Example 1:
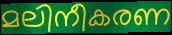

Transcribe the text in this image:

മലിനീകരണ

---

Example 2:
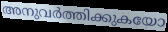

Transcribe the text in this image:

അനുവർത്തിക്കുകയോ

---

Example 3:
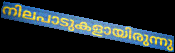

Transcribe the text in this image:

നിലപാടുകളായിരുന്നു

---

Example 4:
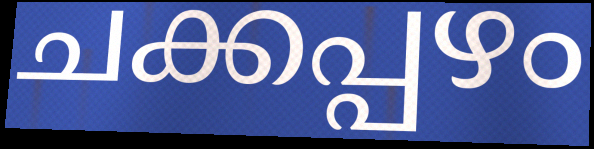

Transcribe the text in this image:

ചക്കപ്പഴം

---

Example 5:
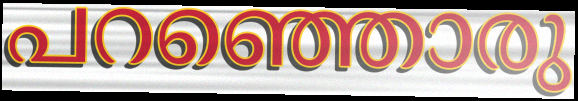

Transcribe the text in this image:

പറഞ്ഞൊരു